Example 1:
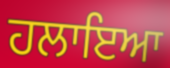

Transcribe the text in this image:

ਹਲਾਇਆ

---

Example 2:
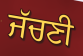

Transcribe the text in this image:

ਜੱਚਣੀ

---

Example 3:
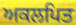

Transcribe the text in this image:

ਅਕਲਪਿਤ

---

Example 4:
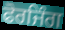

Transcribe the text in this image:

ਫੋਰਜਿੰਗ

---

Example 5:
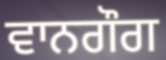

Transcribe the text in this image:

ਵਾਨਗੌਗ